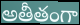
అతీతంగా